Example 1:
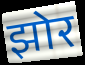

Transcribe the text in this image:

झोर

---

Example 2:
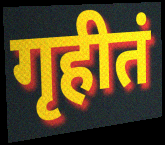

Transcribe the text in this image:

गृहीतं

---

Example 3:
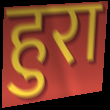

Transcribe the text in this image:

हुरा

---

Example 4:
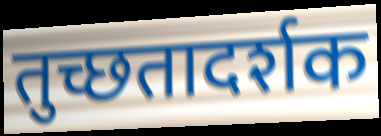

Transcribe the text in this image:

तुच्छतादर्शक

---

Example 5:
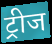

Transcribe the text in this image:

ट्रीज